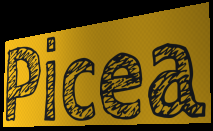
Picea